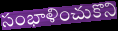
సంభాళించుకొని